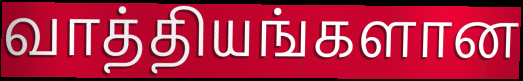
வாத்தியங்களான